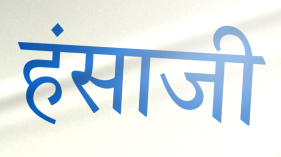
हंसाजी